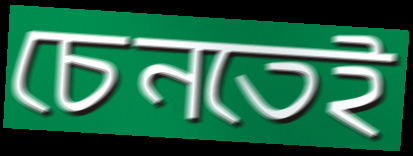
চেনতেই